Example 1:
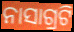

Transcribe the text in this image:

ନାସାଗ୍ରଟି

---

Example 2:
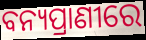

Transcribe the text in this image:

ବନ୍ୟପ୍ରାଣୀରେ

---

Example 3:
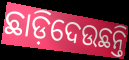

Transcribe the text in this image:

ଛାଡ଼ିଦେଉଛନ୍ତି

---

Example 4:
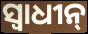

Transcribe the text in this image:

ସ୍ଵାଧୀନ୍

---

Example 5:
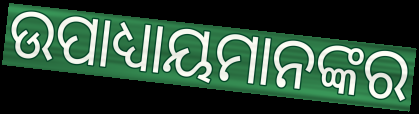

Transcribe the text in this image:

ଉପାଧ୍ୟାୟମାନଙ୍କର